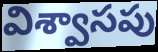
విశ్వాసపు